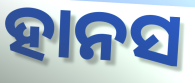
ହାନସ